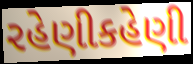
રહેણીકહેણી